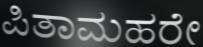
ಪಿತಾಮಹರೇ